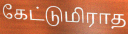
கேட்டுமிராத